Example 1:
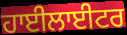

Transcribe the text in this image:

ਹਾਈਲਾਈਟਰ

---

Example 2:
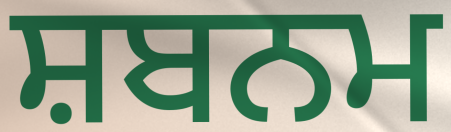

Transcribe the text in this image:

ਸ਼ਬਨਮ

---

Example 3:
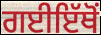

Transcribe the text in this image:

ਗਈਇੱਥੋਂ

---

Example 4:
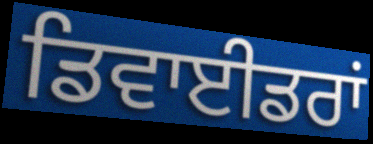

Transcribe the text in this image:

ਡਿਵਾਈਡਰਾਂ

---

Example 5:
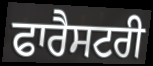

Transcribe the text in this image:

ਫਾਰੈਸਟਰੀ